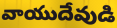
వాయుదేవుడి